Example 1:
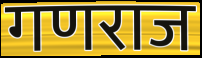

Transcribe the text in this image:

गणराज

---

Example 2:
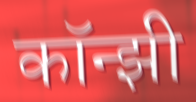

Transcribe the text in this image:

कॉन्झी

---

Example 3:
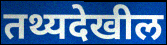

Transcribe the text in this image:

तथ्यदेखील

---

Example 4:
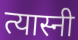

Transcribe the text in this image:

त्यास्नी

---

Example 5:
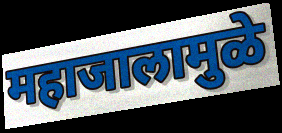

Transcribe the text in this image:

महाजालामुळे